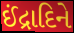
ઈંદ્રાદિને